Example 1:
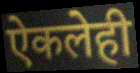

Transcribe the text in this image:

ऐकलेही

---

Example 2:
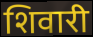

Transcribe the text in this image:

शिवारी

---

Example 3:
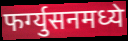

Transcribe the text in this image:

फर्ग्युसनमध्ये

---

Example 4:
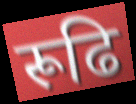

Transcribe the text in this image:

रूढि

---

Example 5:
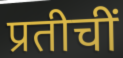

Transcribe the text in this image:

प्रतीचीं